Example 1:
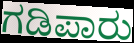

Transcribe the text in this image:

ಗಡಿಪಾರು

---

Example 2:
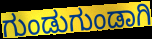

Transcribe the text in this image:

ಗುಂಡುಗುಂಡಾಗಿ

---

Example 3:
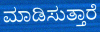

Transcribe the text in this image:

ಮಾಡಿಸುತ್ತಾರೆ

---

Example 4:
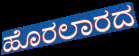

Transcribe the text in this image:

ಹೊರಲಾರದ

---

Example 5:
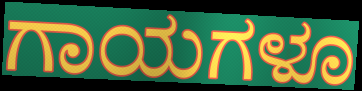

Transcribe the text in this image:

ಗಾಯಗಳೂ